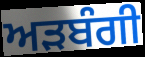
ਅੜਬੰਗੀ